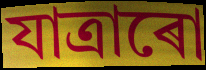
যাত্ৰাৰো